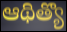
ఆథిత్యొ